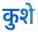
कुशे